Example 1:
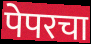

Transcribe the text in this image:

पेपरचा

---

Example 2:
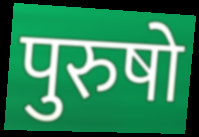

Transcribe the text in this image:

पुरुषो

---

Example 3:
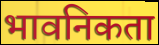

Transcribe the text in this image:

भावनिकता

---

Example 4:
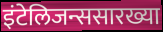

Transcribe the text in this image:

इंटेलिजन्ससारख्या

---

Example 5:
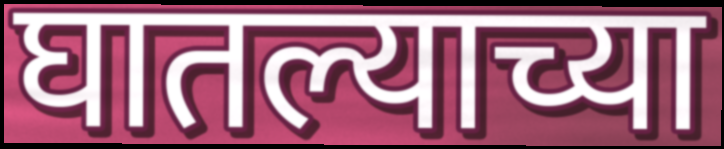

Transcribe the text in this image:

घातल्याच्या